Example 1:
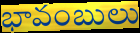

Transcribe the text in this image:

భావంబులు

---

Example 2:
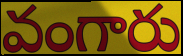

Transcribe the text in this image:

వంగారు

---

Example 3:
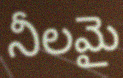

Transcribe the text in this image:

నీలమై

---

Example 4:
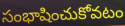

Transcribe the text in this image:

సంభాషించుకోవటం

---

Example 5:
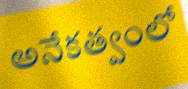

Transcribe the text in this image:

అనేకత్వంలో